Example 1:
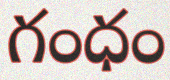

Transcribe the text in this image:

గంధం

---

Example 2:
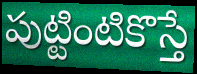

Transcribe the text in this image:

పుట్టింటికొస్తే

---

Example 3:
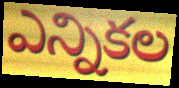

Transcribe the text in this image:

ఎన్నికల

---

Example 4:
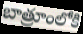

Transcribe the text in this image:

బాత్రూంలోకి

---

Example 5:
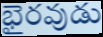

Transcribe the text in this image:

భైరవుడు